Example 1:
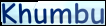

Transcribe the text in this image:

Khumbu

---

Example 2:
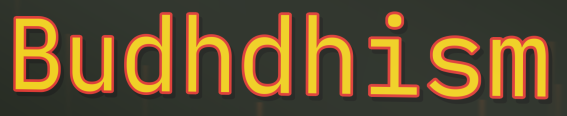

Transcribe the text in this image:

Budhdhism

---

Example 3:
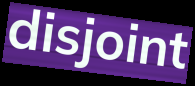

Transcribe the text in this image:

disjoint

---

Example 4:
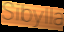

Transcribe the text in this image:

Sibylla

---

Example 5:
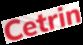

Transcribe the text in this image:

Cetrin